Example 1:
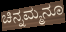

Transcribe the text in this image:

ಚಿನ್ನಮ್ಮನೂ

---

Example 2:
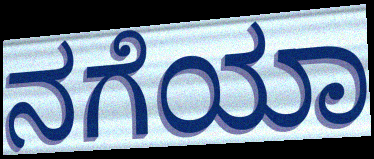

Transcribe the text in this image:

ನಗೆಯಾ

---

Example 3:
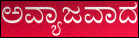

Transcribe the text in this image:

ಅವ್ಯಾಜವಾದ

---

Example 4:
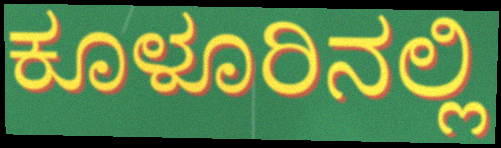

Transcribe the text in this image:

ಕೂಳೂರಿನಲ್ಲಿ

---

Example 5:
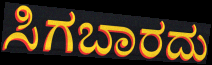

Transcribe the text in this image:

ಸಿಗಬಾರದು